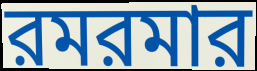
রমরমার